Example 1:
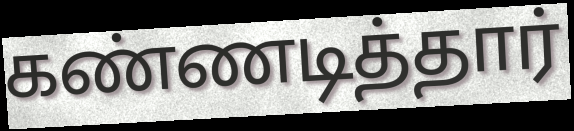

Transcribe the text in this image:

கண்ணடித்தார்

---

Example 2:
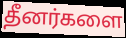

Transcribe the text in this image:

தீனர்களை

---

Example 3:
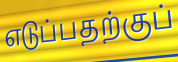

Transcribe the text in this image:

எடுப்பதற்குப்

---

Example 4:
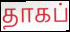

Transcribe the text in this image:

தாகப்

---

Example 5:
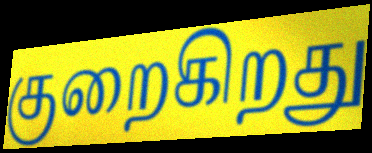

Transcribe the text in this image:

குறைகிறது